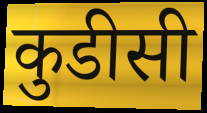
कुडीसी